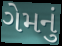
ગેમનું